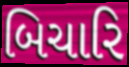
બિચારિ